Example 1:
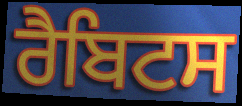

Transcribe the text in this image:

ਰੈਬਿਟਸ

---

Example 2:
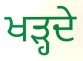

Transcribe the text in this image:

ਖੜ੍ਹਦੇ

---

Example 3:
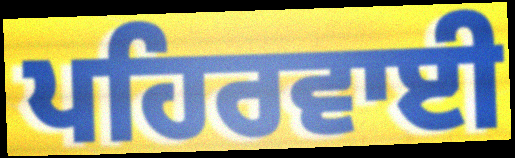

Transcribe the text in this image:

ਪਹਿਰਵਾਈ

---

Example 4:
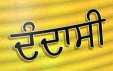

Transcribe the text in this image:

ਦੰਦਾਸੀ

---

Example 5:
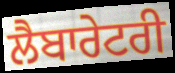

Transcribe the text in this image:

ਲੈਬਾਰੇਟਰੀ